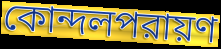
কোন্দলপরায়ণ